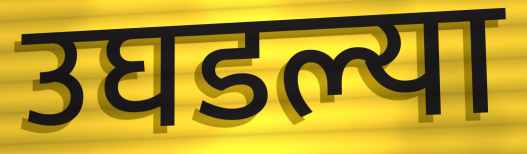
उघडल्या